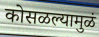
कोसळल्यामुळं